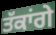
ਤੱਕਾਂਗੇ